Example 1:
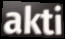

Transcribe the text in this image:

akti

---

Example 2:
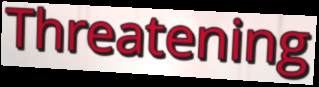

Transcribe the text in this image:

Threatening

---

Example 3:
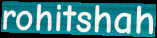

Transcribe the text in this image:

rohitshah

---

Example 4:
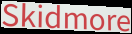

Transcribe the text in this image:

Skidmore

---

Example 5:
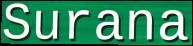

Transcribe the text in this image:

Surana